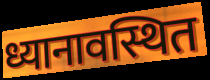
ध्यानावस्थित